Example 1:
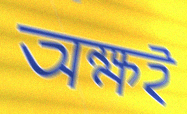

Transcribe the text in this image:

অক্ষই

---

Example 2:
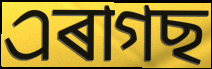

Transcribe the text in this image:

এৰাগছ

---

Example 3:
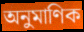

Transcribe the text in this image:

অনুমাণিক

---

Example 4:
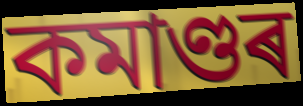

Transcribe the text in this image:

কমাণ্ডৰ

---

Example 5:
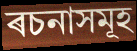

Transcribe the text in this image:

ৰচনাসমূহ